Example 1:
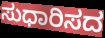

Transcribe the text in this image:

ಸುಧಾರಿಸದ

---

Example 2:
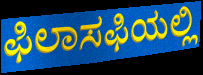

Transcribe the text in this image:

ಫಿಲಾಸಫಿಯಲ್ಲಿ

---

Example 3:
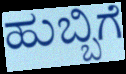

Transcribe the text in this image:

ಹುಬ್ಬಿಗೆ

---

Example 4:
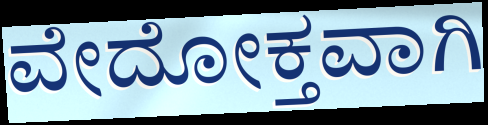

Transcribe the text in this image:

ವೇದೋಕ್ತವಾಗಿ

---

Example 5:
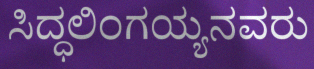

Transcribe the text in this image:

ಸಿದ್ಧಲಿಂಗಯ್ಯನವರು